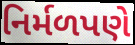
નિર્મળપણે